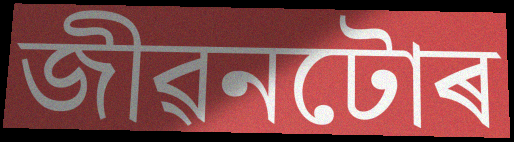
জীৱনটোৰ